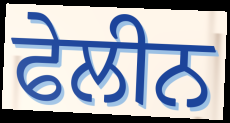
ਫੇਲੀਨ